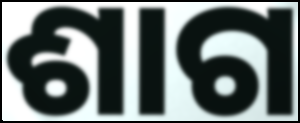
ଶାଗ